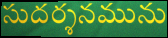
సుదర్శనమును